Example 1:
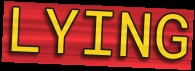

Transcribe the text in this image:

LYING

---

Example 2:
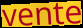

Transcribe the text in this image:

vente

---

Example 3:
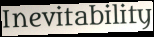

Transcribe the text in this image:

Inevitability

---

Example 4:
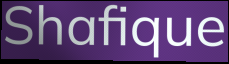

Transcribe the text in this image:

Shafique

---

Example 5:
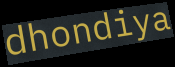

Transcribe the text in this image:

dhondiya